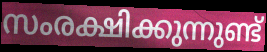
സംരക്ഷിക്കുന്നുണ്ട്